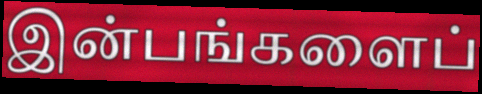
இன்பங்களைப்